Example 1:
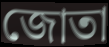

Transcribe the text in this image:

জোতা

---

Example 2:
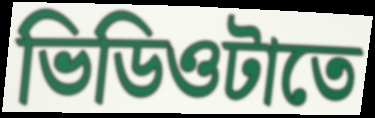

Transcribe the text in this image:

ভিডিওটাতে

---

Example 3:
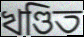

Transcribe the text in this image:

খণ্ডিত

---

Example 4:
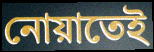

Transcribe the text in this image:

নোয়াতেই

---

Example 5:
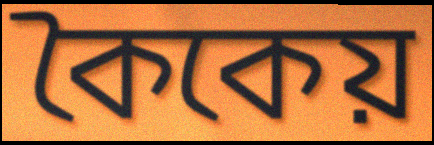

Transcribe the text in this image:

কৈকেয়